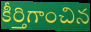
కీర్తిగాంచిన